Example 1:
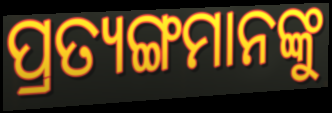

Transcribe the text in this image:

ପ୍ରତ୍ୟଙ୍ଗମାନଙ୍କୁ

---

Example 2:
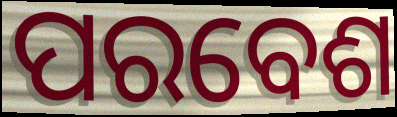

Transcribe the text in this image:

ପରବେଶ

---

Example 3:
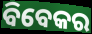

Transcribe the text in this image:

ବିବେକର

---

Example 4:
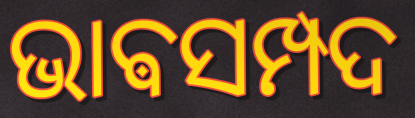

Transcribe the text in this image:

ଭାଵସମ୍ପଦ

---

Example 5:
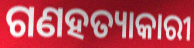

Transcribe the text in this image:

ଗଣହତ୍ୟାକାରୀ